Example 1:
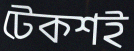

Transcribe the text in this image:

টেকশই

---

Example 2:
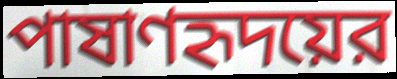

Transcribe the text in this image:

পাষাণহৃদয়ের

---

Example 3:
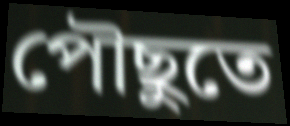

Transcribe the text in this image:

পৌছুতে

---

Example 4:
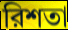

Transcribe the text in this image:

রিশতা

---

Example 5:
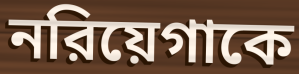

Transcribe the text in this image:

নরিয়েগাকে